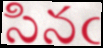
సినఁ